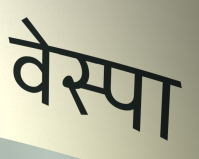
वेस्‍पा